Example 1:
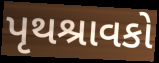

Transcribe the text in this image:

પૃથશ્રાવકો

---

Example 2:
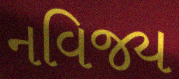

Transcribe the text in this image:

નવિજ્ય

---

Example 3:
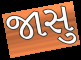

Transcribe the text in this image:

જાસુ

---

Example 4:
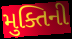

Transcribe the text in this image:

મુક્તિની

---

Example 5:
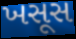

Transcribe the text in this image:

ખસૂસ